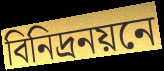
বিনিদ্রনয়নে